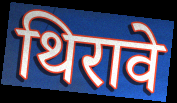
थिरावे